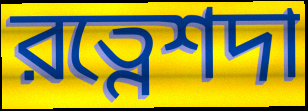
রত্নেশদা